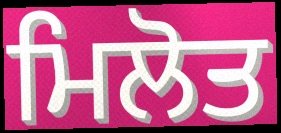
ਮਿਲੋਤ